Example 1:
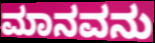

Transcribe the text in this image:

ಮಾನವನು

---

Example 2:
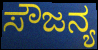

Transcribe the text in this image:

ಸೌಜನ್ಯ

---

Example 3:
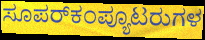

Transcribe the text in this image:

ಸೂಪರ್‌ಕಂಪ್ಯೂಟರುಗಳ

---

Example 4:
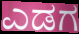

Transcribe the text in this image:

ಎಡಗ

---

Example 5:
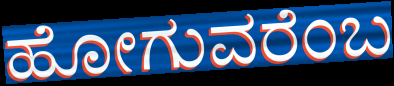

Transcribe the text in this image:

ಹೋಗುವರೆಂಬ